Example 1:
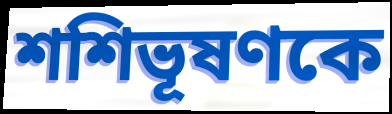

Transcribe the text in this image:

শশিভূষণকে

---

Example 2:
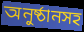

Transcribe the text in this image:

অনুষ্ঠানসহ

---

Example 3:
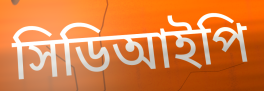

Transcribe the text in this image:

সিডিআইপি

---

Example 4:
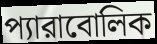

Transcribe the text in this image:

প্যারাবোলিক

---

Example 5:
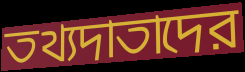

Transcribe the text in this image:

তথ্যদাতাদের